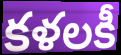
కళలకీ